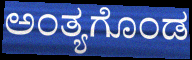
ಅಂತ್ಯಗೊಂಡ